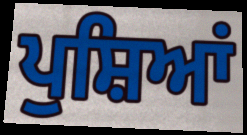
ਪੁਸ਼ਿਆਂ